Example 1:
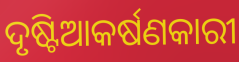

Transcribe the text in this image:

ଦୃଷ୍ଟିଆକର୍ଷଣକାରୀ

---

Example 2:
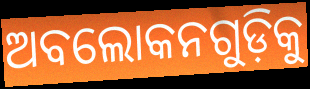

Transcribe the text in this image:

ଅବଲୋକନଗୁଡ଼ିକୁ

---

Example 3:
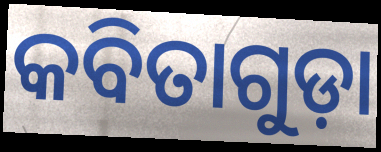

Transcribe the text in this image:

କବିତାଗୁଡ଼ା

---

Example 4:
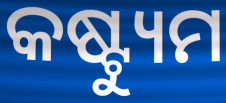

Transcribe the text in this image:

କଷ୍ଟ୍ୟୁମ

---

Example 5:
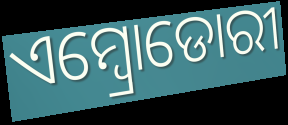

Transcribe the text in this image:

ଏମ୍ବ୍ରୋଡୋରୀ